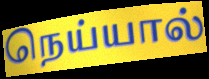
நெய்யால்